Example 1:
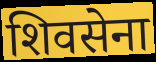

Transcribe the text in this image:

शिवसेना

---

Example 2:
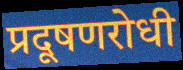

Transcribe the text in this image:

प्रदूषणरोधी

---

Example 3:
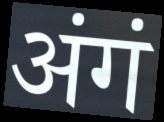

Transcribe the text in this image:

अंगं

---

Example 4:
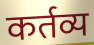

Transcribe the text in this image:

कर्तव्य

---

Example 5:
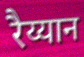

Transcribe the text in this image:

रैय्यान